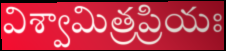
విశ్వామిత్రప్రియః